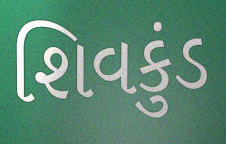
શિવકુંડ